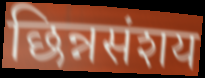
छिन्नसंशय